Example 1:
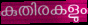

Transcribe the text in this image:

കുതിരകളും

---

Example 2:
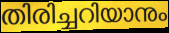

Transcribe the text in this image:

തിരിച്ചറിയാനും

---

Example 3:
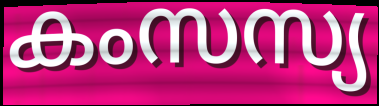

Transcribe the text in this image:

കംസസ്യ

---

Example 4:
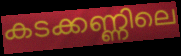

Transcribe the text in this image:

കടക്കണ്ണിലെ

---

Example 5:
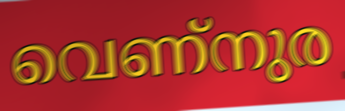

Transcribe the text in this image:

വെണ്നുര